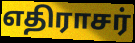
எதிராசர்